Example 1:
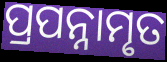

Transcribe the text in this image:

ପ୍ରପନ୍ନାମୃତ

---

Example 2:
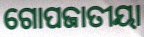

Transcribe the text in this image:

ଗୋପଜାତୀୟା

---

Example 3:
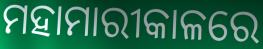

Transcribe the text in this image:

ମହାମାରୀକାଳରେ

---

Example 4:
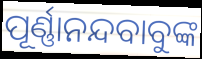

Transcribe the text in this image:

ପୂର୍ଣ୍ଣାନନ୍ଦବାବୁଙ୍କ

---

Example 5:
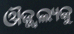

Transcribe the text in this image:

ଔଜ୍ଜ୍ଵଲ୍ୟକୁ